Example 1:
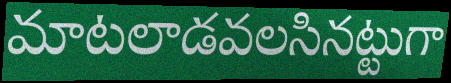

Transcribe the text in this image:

మాటలాడవలసినట్టుగా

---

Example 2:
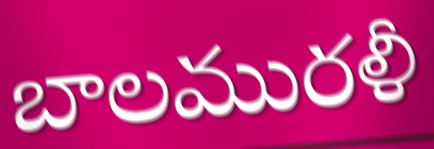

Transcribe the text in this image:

బాలమురళీ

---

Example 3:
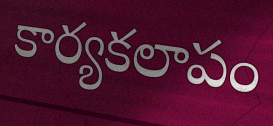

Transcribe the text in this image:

కార్యకలాపం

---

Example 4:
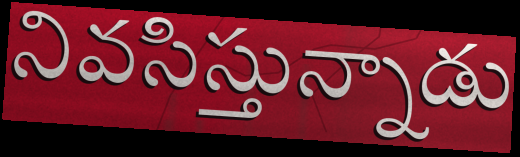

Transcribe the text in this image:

నివసిస్తున్నాడు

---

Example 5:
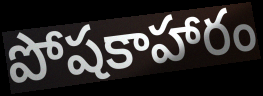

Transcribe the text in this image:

పోషకాహారం